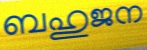
ബഹുജന